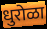
धुरोळा